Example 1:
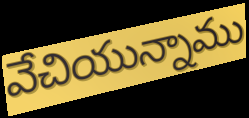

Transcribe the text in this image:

వేచియున్నాము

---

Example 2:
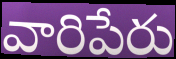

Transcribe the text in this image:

వారిపేరు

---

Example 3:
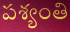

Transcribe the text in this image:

పశ్యంతి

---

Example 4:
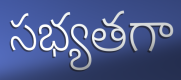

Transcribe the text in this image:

సభ్యతగా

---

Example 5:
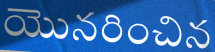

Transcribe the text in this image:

యొనరించిన